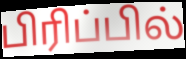
பிரிப்பில்